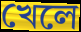
খেলে